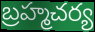
బ్రహ్మచర్య